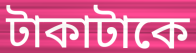
টাকাটাকে